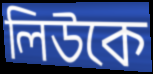
লিউকে